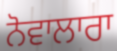
ਨੋਵਾਲਾਰਾ